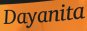
Dayanita